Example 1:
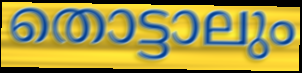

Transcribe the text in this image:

തൊട്ടാലും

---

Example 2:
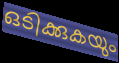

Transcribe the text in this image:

ഒടിക്കുകയും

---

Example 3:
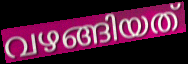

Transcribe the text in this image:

വഴങ്ങിയത്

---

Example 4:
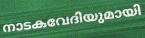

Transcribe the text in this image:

നാടകവേദിയുമായി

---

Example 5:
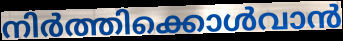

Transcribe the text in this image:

നിർത്തിക്കൊൾവാൻ